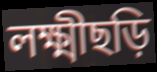
লক্ষ্মীছড়ি